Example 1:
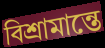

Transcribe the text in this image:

বিশ্রামান্তে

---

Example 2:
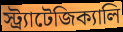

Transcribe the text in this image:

স্ট্র্যাটেজিক্যালি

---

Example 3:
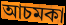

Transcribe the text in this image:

আচমকা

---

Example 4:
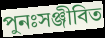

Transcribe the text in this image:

পুনঃসঞ্জীবিত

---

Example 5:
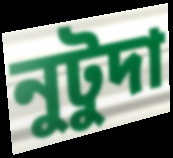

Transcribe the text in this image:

নুটুদা